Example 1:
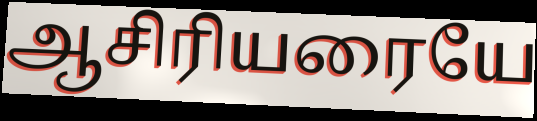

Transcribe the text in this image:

ஆசிரியரையே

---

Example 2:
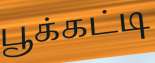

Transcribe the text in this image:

பூக்கட்டி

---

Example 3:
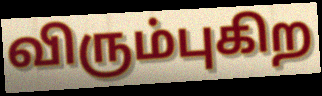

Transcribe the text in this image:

விரும்புகிற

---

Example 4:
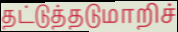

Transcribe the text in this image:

தட்டுத்தடுமாறிச்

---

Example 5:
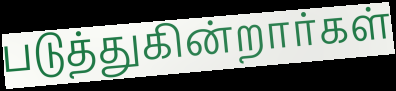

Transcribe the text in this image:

படுத்துகின்றார்கள்